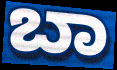
ಬಾ